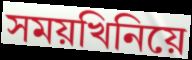
সময়খিনিয়ে